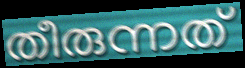
തീരുന്നത്